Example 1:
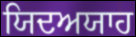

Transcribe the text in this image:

ਯਿਦਅਯਾਹ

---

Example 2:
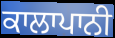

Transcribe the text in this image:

ਕਾਲਾਪਾਨੀ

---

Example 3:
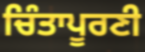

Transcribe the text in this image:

ਚਿੰਤਾਪੂਰਣੀ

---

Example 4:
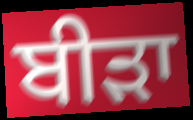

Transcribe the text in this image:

ਬੀੜਾ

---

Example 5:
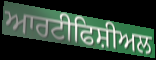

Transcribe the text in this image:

ਆਰਟੀਫਿਸ਼ੀਅਲ